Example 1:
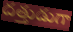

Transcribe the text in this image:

దత్తుడుగా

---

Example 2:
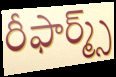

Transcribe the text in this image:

రీఫార్మ్స్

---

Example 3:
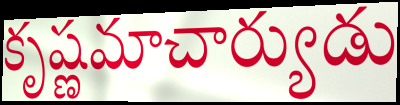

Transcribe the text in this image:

కృష్ణమాచార్యుడు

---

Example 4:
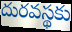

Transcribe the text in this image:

దురవస్థకు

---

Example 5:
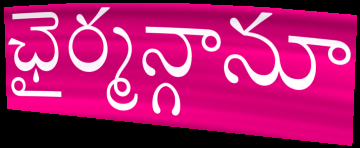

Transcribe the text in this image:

ఛైర్మన్గానూ